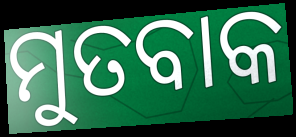
ମୁତବାକ